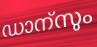
ഡാന്സും